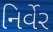
નિર્વેર